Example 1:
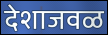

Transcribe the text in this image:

देशाजवळ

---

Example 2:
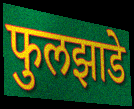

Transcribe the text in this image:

फुलझाडे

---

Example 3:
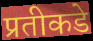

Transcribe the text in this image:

प्रतीकडे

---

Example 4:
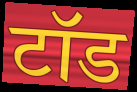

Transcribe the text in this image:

टॉड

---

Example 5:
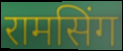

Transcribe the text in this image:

रामसिंग